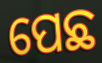
ପେଛ